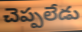
చెప్పలేడు